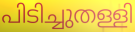
പിടിച്ചുതള്ളി